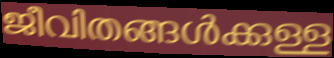
ജീവിതങ്ങൾക്കുള്ള